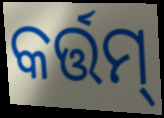
କର୍ତ୍ତମ୍